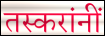
तस्करांनीं